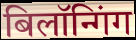
बिलॉन्गिंग